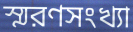
স্মরণসংখ্যা